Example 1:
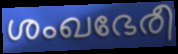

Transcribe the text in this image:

ശംഖഭേരീ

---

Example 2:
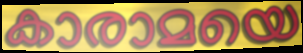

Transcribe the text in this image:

കാരാമയെ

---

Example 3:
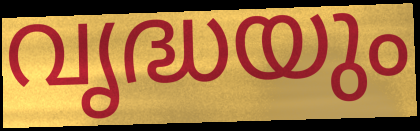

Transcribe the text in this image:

വൃദ്ധയും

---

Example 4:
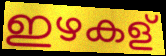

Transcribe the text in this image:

ഇഴകള്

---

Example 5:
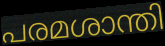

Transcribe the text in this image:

പരമശാന്തി